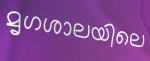
മൃഗശാലയിലെ